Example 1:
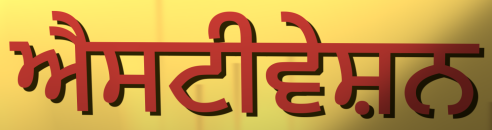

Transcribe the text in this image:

ਐਸਟੀਵੇਸ਼ਨ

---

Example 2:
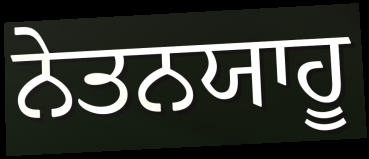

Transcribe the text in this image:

ਨੇਤਨਯਾਹੂ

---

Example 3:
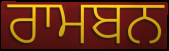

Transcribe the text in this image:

ਰਾਮਬਨ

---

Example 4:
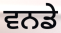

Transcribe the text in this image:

ਵਨਡੇ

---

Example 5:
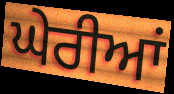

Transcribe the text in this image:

ਘੇਰੀਆਂ